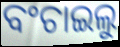
ବଂଚାଇଲୁ